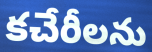
కచేరీలను